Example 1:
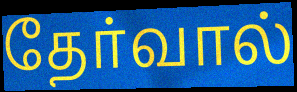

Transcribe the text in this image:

தேர்வால்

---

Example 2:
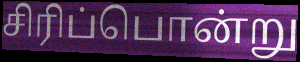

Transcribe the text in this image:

சிரிப்பொன்று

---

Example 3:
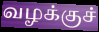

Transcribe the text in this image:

வழக்குச்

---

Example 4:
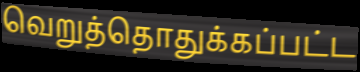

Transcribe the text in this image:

வெறுத்தொதுக்கப்பட்ட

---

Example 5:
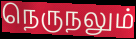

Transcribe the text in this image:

நெருநலும்